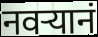
नवर्‍यानं